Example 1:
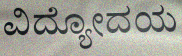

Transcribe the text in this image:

ವಿದ್ಯೋದಯ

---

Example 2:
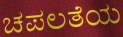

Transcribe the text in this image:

ಚಪಲತೆಯ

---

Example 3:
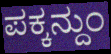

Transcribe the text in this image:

ಪಕ್ಕನ್ದುಂ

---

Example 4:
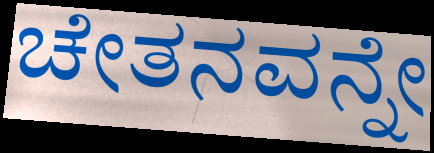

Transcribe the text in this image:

ಚೇತನವನ್ನೇ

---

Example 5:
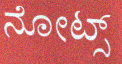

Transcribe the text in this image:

ನೋಟ್ಸ್